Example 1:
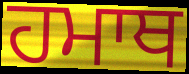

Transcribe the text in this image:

ਹਮਾਥ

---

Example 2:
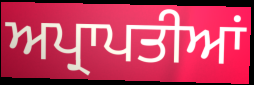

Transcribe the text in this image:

ਅਪ੍ਰਾਪਤੀਆਂ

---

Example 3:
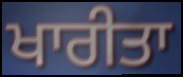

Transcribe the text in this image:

ਖਾਰੀਤਾ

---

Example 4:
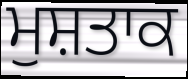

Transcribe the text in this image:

ਮੁਸ਼ਤਾਕ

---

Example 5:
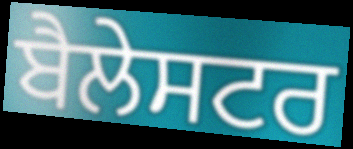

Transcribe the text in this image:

ਬੈਲੇਸਟਰ